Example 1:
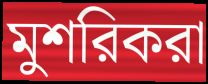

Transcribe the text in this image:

মুশরিকরা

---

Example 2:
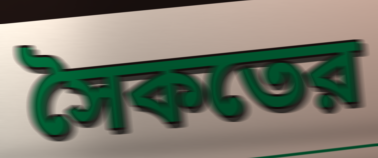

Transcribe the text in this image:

সৈকতের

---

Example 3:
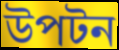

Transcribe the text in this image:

উপটন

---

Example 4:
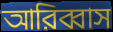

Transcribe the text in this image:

আরিব্বাস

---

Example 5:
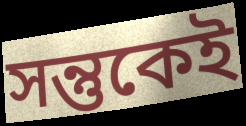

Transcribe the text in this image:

সন্তুকেই